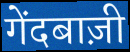
गेंदबाज़ी